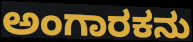
ಅಂಗಾರಕನು